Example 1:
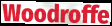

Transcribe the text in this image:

Woodroffe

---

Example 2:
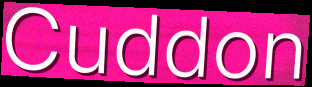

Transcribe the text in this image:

Cuddon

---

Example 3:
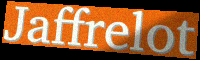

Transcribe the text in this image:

Jaffrelot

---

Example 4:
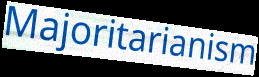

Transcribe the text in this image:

Majoritarianism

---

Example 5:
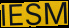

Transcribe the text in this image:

IESM